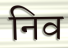
निव